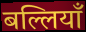
बल्लियाँ